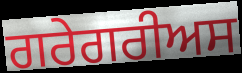
ਗਰੇਗਰੀਅਸ